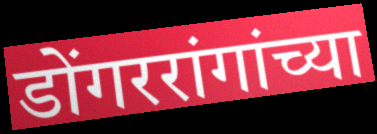
डोंगररांगांच्या